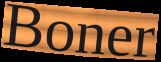
Boner